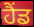
ਹੈਂਡ